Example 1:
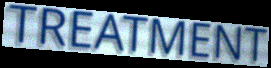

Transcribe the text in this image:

TREATMENT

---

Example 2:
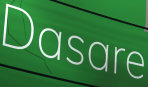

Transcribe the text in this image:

Dasare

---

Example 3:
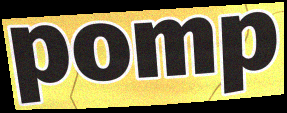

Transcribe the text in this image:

pomp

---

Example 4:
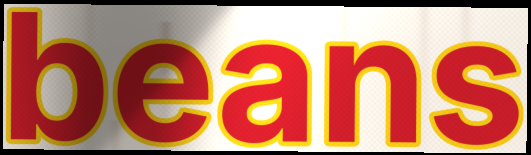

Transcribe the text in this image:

beans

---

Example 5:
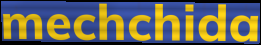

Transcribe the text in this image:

mechchida